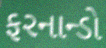
ફરનાન્ડો